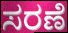
ಸರಣೆ